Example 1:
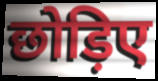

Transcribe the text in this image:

छोड़िए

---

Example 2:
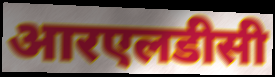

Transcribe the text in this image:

आरएलडीसी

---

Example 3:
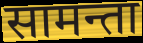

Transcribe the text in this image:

सामन्ता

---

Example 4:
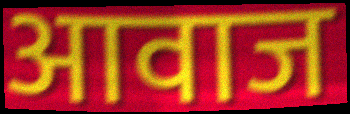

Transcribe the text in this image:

आवाज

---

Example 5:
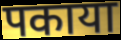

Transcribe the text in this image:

पकाया